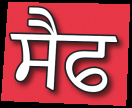
ਸੈਫ